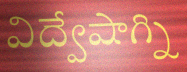
విద్వేషాగ్ని